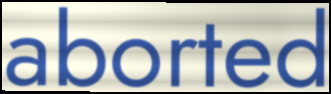
aborted